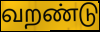
வறண்டு